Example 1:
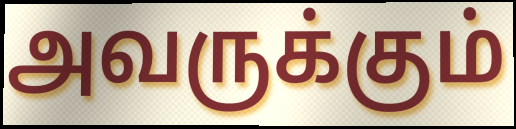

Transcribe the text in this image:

அவருக்கும்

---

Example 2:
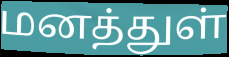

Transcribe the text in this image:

மனத்துள்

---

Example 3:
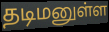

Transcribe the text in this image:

தடிமனுள்ள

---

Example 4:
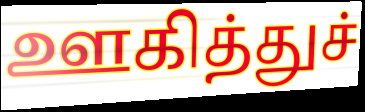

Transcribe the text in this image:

ஊகித்துச்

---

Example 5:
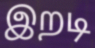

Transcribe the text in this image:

இறடி